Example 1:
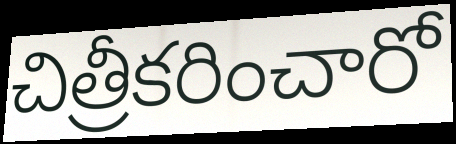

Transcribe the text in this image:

చిత్రీకరించారో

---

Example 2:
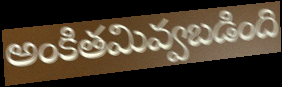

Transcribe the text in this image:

అంకితమివ్వబడింది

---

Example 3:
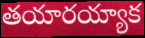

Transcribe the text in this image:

తయారయ్యాక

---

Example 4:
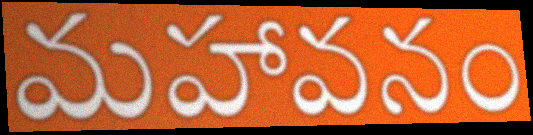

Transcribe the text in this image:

మహావనం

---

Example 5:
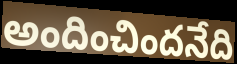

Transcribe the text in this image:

అందించిందనేది